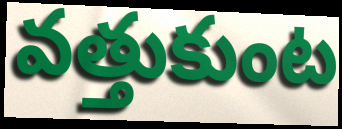
వత్తుకుంట